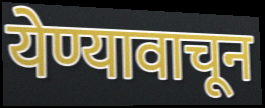
येण्यावाचून